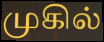
முகில்